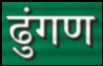
ढुंगण